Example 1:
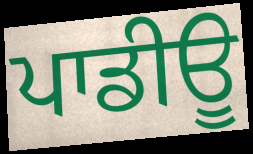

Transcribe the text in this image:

ਪਾਡੀਊ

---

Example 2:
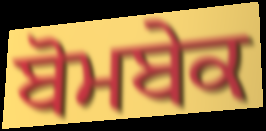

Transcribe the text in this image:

ਬੋਮਬੇਕ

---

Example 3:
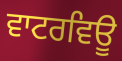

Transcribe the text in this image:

ਵਾਟਰਵਿਊ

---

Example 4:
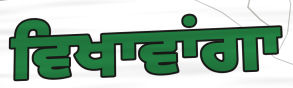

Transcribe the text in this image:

ਵਿਖਾਵਾਂਗਾ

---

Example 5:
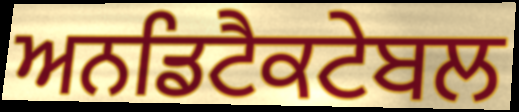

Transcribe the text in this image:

ਅਨਡਿਟੈਕਟੇਬਲ